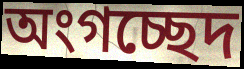
অংগচ্ছেদ